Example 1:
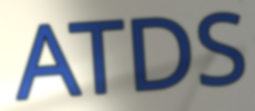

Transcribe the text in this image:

ATDS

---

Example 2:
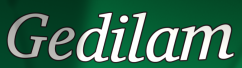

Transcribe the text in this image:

Gedilam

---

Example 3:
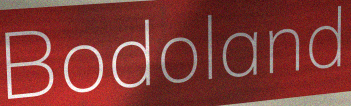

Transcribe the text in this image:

Bodoland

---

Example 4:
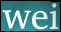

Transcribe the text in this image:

wei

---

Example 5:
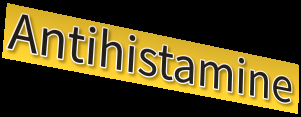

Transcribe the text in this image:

Antihistamine